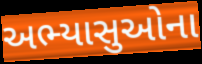
અભ્યાસુઓના